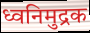
ध्वनिमुद्रक